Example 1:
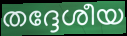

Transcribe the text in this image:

തദ്ദേശീയ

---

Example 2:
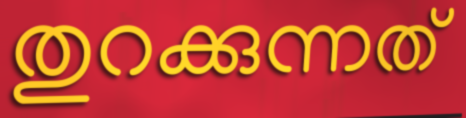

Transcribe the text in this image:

തുറക്കുന്നത്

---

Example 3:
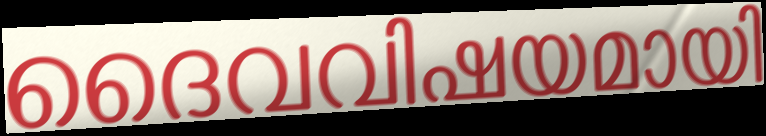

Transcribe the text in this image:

ദൈവവിഷയമായി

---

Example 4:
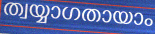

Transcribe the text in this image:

ത്വയ്യാഗതായാം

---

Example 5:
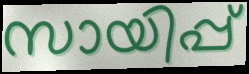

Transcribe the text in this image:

സായിപ്പ്